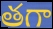
తగా